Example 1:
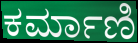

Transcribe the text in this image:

ಕರ್ಮಾಣಿ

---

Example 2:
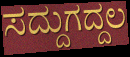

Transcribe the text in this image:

ಸದ್ದುಗದ್ದಲ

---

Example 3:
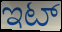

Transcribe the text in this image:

ಇಟ್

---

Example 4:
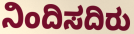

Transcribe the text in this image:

ನಿಂದಿಸದಿರು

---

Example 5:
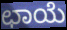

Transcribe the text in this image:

ಛಾಯೆ